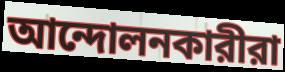
আন্দোলনকারীরা